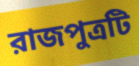
রাজপুত্রটি